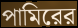
পামিরের